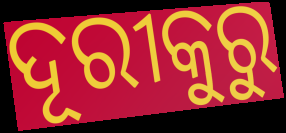
ଦୂରୀକୁରୁ